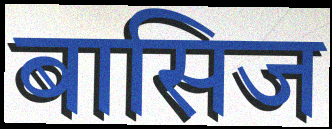
बासिज